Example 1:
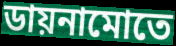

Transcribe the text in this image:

ডায়নামোতে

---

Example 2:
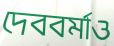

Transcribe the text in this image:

দেববর্মাও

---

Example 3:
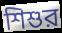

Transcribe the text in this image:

শিশুর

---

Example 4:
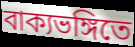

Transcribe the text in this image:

বাক্যভঙ্গিতে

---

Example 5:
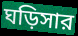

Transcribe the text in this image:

ঘড়িসার